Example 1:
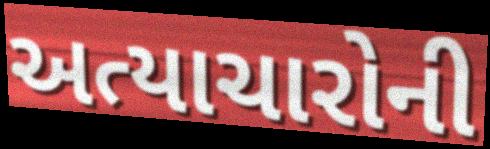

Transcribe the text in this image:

અત્યાચારોની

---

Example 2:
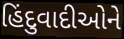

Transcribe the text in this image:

હિંદુવાદીઓને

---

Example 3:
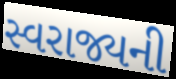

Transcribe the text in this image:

સ્વરાજ્યની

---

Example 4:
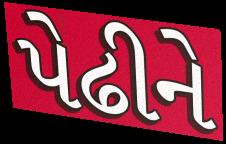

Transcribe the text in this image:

પેઢીને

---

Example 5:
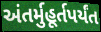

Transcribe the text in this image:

અંતર્મુહૂર્તપર્યંત